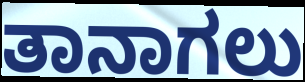
ತಾನಾಗಲು